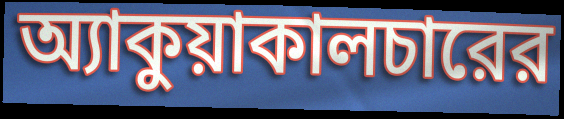
অ্যাকুয়াকালচারের